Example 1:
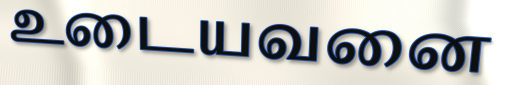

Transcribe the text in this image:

உடையவனை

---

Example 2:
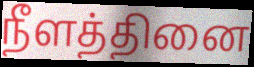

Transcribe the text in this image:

நீளத்தினை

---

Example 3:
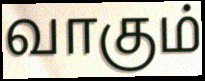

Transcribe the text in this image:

வாகும்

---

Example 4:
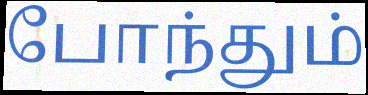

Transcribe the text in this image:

போந்தும்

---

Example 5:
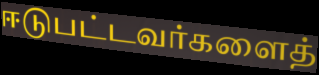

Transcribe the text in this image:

ஈடுபட்டவர்களைத்